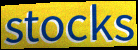
stocks